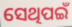
ସେଥିପଇଁ